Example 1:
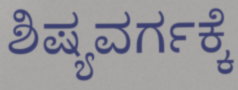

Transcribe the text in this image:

ಶಿಷ್ಯವರ್ಗಕ್ಕೆ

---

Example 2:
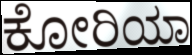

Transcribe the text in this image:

ಕೋರಿಯಾ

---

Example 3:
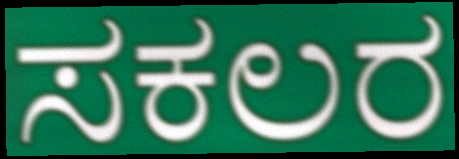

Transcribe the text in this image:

ಸಕಲರ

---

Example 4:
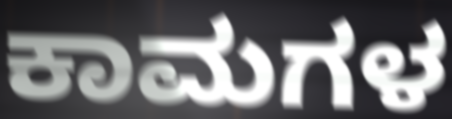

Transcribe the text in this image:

ಕಾಮಗಳ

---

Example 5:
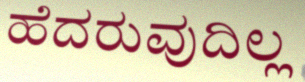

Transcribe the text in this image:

ಹೆದರುವುದಿಲ್ಲ